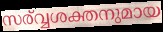
സര്വ്വശക്തനുമായ